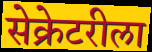
सेक्रेटरीला